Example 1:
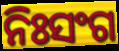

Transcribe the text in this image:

ନିଃସଂଗ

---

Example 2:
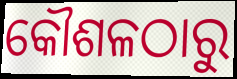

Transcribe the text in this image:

କୌଶଳଠାରୁ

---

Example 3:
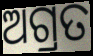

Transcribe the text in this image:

ଅଗ୍ରତ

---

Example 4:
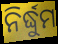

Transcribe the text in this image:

ନିର୍ଦ୍ଧୁମ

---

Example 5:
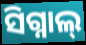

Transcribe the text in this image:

ସିଗ୍ନାଲ୍